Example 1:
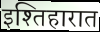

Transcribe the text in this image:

इश्तिहारात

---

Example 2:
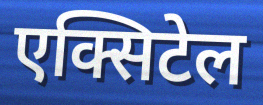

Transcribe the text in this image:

एक्सिटेल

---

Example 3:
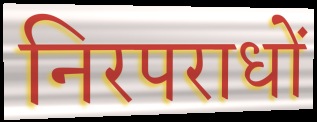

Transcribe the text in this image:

निरपराधों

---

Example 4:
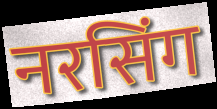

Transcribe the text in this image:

नरसिंग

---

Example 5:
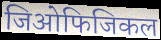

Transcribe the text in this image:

जिओफिजिकल